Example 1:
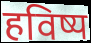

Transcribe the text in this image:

हविष्‍य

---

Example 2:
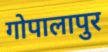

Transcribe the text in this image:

गोपालापुर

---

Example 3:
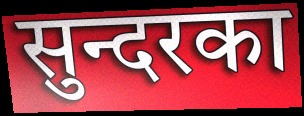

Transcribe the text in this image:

सुन्दरका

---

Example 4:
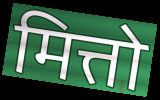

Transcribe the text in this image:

मित्तो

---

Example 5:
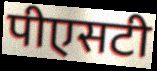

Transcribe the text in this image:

पीएसटी